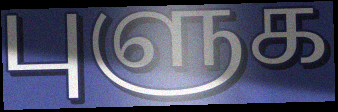
புளுக